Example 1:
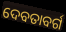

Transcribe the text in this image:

ଦେବତାବର୍ଗ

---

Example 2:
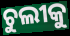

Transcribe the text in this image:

ଚୁଲୀକୁ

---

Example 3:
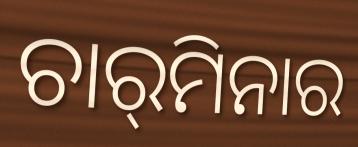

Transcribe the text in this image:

ଚାର୍‌ମିନାର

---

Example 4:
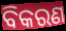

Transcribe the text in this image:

ବିକରଣ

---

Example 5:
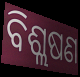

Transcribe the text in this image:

ବିଶ୍ଲଷଣ